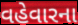
વહેવારના